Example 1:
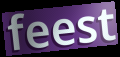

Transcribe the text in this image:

feest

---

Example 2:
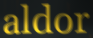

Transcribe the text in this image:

aldor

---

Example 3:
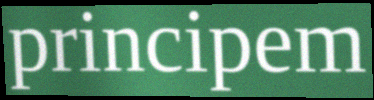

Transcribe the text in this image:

principem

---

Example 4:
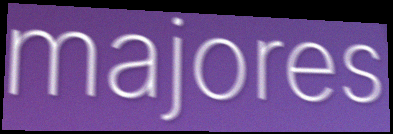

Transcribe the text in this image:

majores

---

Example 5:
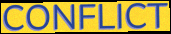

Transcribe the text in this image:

CONFLICT